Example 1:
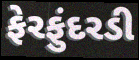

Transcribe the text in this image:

ફેરફુંદરડી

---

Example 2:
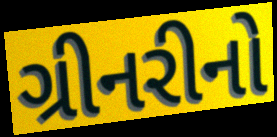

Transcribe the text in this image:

ગ્રીનરીનો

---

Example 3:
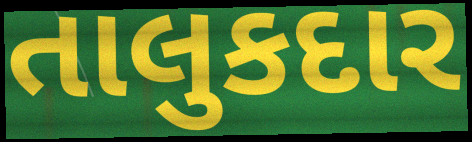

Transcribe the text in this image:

તાલુકદાર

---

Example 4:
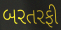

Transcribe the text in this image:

બરતરફી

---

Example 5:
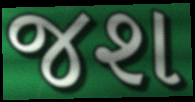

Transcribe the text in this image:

જશ